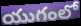
యుగంలో